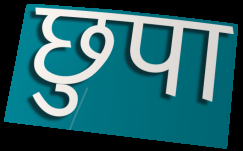
छुपा